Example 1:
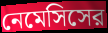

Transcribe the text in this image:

নেমেসিসের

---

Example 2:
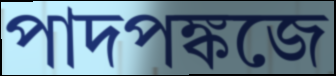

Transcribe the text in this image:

পাদপঙ্কজে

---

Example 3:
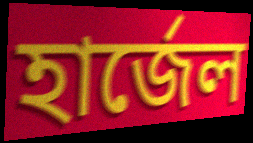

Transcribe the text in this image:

হার্জেল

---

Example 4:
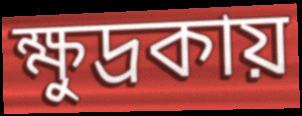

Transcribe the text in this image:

ক্ষুদ্রকায়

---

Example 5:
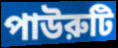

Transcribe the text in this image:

পাউরুটি